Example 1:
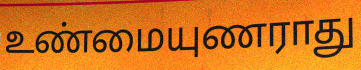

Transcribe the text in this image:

உண்மையுணராது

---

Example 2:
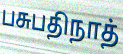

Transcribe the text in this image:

பசுபதிநாத்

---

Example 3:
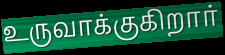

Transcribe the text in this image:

உருவாக்குகிறார்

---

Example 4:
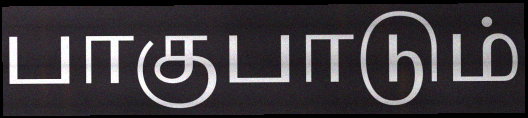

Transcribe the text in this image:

பாகுபாடும்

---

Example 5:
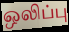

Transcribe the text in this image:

ஒலிப்பு